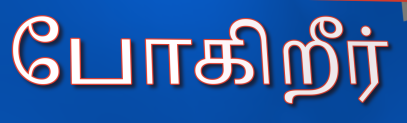
போகிறீர்